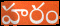
హరం